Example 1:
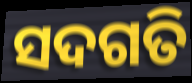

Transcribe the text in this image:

ସଦଗତି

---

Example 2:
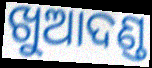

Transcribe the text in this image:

ଖୁଆଦଣ୍ଡ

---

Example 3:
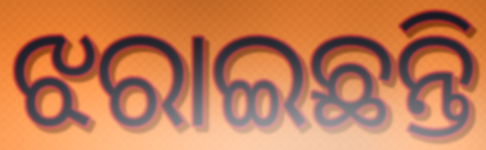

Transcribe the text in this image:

ଝରାଇଛନ୍ତି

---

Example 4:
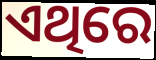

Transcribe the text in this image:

ଏଥିରେ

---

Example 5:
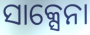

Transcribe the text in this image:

ସାକ୍ସେନା